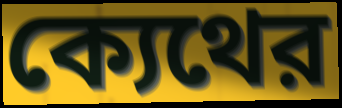
ক্যেথের